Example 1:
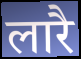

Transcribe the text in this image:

लारै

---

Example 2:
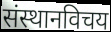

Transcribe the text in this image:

संस्थानविचय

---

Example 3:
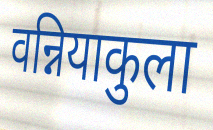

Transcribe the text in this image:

वन्नियाकुला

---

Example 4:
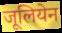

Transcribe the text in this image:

जूलियेन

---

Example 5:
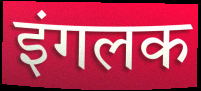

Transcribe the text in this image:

इंगलक